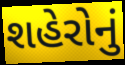
શહેરોનું